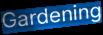
Gardening